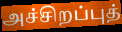
அச்சிறப்புத்